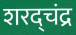
शरद्चंद्र